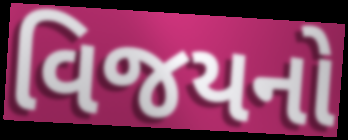
વિજયનો